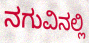
ನಗುವಿನಲ್ಲಿ